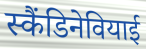
स्कैंडिनेवियाई